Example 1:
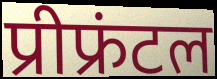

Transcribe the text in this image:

प्रीफ्रंटल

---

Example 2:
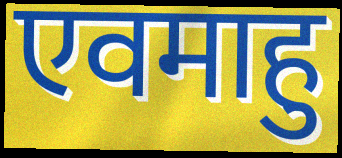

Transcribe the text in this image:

एवमाहु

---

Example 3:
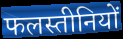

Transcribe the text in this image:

फलस्तीनियों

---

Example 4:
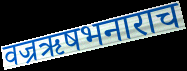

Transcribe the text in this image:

वज्रऋषभनाराच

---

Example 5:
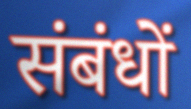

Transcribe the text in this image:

संबंधों